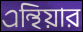
এন্থিয়ার